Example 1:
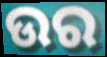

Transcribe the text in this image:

ଉର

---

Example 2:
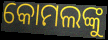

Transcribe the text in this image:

କୋମଲଙ୍କୁ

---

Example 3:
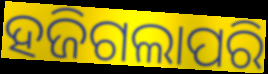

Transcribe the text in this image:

ହଜିଗଲାପରି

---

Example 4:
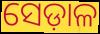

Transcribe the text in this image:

ସେଡ଼ାଳ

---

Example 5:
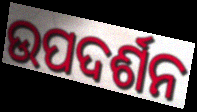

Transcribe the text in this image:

ଉପଦର୍ଶନ